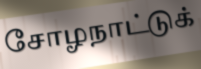
சோழநாட்டுக்